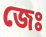
জেঃ